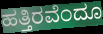
ಹತ್ತಿರವೆಂದೂ